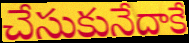
చేసుకునేదాకే